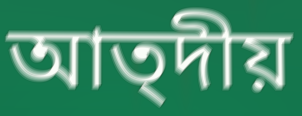
আত্দীয়